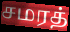
சமரத்